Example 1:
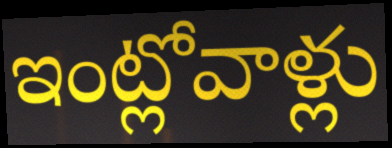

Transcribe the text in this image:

ఇంట్లోవాళ్లు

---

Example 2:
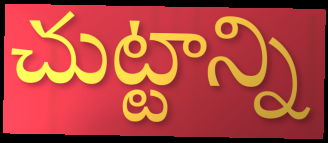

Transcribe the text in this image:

చుట్టాన్ని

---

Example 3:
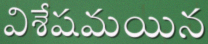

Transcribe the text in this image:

విశేషమయిన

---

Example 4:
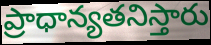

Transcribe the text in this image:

ప్రాధాన్యతనిస్తారు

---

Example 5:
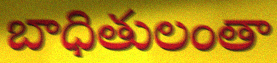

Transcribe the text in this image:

బాధితులంతా